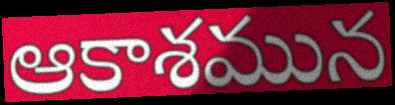
ఆకాశమున